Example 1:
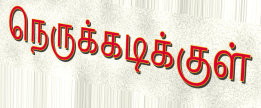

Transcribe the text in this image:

நெருக்கடிக்குள்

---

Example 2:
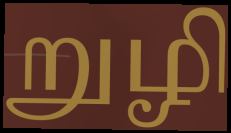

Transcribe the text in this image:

றுழி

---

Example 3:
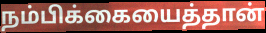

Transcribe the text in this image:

நம்பிக்கையைத்தான்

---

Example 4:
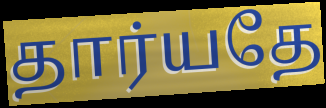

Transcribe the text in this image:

தார்யதே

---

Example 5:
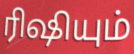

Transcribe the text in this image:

ரிஷியும்